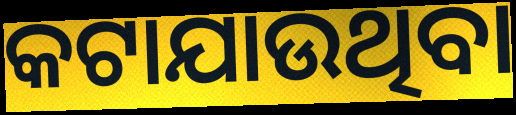
କଟାଯାଉଥିବା